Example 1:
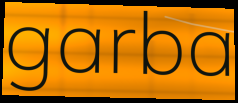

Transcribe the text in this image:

garba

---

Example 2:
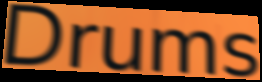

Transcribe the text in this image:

Drums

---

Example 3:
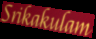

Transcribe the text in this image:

Srikakulam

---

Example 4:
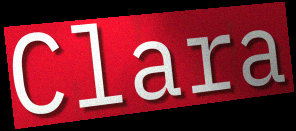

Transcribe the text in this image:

Clara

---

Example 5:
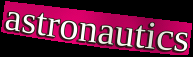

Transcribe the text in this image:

astronautics